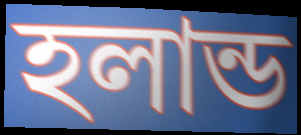
হলান্ড